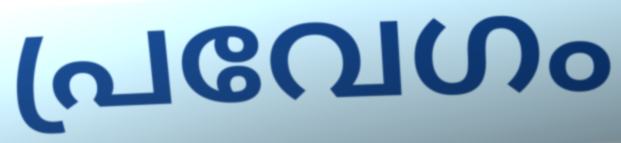
പ്രവേഗം